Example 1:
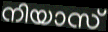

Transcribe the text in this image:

നിയാസ്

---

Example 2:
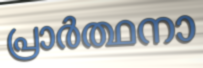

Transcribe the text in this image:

പ്രാർത്ഥനാ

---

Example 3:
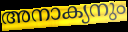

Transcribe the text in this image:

അനാക്യനും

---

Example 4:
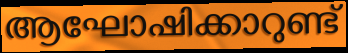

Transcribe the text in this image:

ആഘോഷിക്കാറുണ്ട്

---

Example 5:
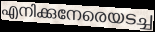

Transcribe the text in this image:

എനിക്കുനേരെയടച്ച